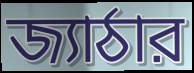
জ্যাঠার